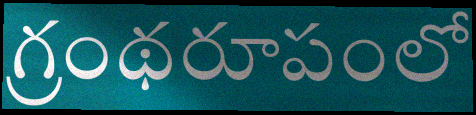
గ్రంథరూపంలో